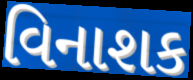
વિનાશક